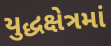
યુદ્ધક્ષેત્રમાં